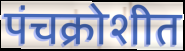
पंचक्रोशीत